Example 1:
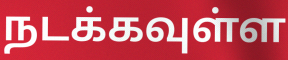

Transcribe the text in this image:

நடக்கவுள்ள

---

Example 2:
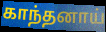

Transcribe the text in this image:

காந்தனாய்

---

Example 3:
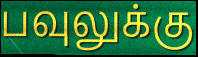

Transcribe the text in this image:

பவுலுக்கு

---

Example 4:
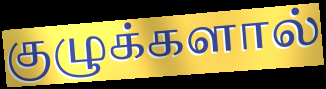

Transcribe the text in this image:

குழுக்களால்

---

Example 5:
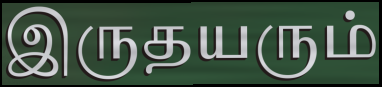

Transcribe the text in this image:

இருதயரும்